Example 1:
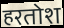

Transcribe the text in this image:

हरतोश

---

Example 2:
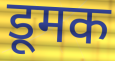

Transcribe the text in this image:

डूमक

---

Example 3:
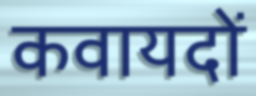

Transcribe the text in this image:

कवायदों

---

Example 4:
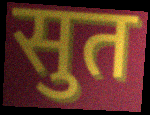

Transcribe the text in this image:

सुत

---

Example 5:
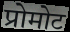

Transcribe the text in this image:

प्रोमोट